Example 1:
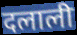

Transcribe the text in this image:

दलाली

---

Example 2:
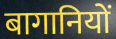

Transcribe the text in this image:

बागानियों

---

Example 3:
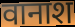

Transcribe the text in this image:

वानाश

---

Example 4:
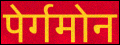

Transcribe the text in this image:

पेर्गमोन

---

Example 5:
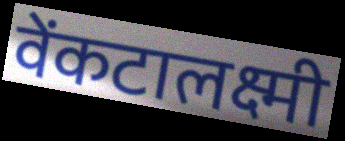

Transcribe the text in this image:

वेंकटालक्ष्मी